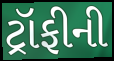
ટ્રૉફીની